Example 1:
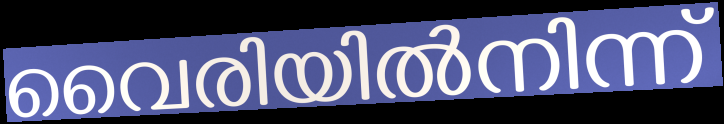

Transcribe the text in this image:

വൈരിയിൽനിന്ന്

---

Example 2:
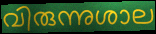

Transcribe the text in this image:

വിരുന്നുശാല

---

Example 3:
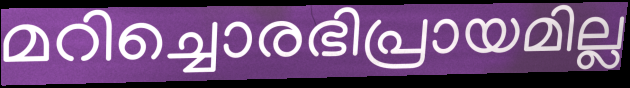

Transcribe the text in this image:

മറിച്ചൊരഭിപ്രായമില്ല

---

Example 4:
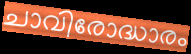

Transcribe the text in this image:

ചാവിരോദ്ധാരം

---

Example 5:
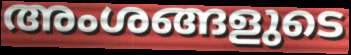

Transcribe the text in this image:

അംശങ്ങളുടെ